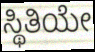
ಸ್ಥಿತಿಯೇ